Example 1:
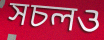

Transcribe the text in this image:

সচলও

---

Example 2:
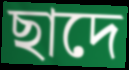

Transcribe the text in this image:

ছাদে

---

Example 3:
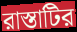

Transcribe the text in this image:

রাস্তাটির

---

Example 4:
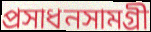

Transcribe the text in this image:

প্রসাধনসামগ্রী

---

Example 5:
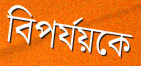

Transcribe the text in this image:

বিপর্যয়কে